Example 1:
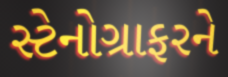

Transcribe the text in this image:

સ્ટેનોગ્રાફરને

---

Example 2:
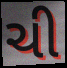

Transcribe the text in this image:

ચી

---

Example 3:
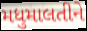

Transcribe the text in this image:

મધુમાલતીને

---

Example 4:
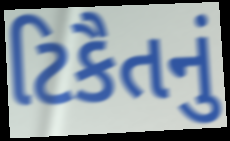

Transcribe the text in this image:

ટિકૈતનું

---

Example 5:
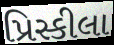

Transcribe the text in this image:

પ્રિસ્કીલા